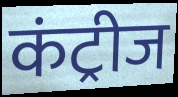
कंट्रीज